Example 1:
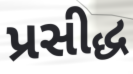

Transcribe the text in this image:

પ્રસીદ્ધ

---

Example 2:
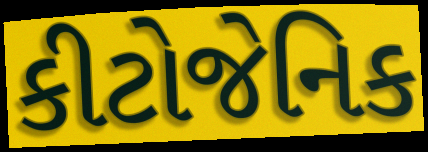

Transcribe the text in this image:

કીટોજેનિક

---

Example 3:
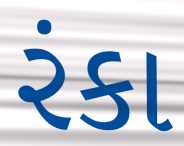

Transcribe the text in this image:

રંકા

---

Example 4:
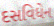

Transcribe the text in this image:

દસવિધેન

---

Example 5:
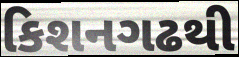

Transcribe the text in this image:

કિશનગઢથી